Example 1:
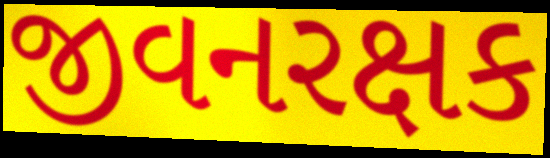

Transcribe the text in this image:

જીવનરક્ષક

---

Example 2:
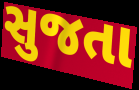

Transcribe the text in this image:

સુજતા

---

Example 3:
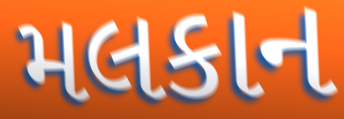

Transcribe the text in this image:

મલકાન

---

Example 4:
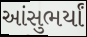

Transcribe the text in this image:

આંસુભર્યાં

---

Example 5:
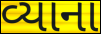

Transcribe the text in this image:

વ્યાના